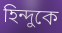
হিন্দুকে